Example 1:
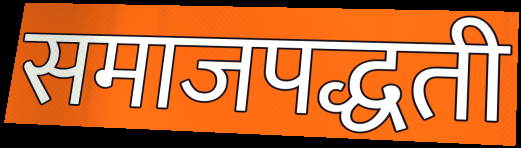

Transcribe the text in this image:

समाजपद्धती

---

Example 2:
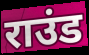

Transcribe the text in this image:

राउंड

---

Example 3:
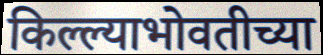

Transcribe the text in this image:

किल्ल्याभोवतीच्या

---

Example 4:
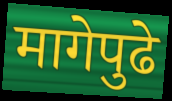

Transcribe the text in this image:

मागेपुढे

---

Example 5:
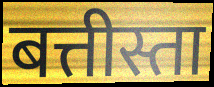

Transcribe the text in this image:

बत्तीस्ता